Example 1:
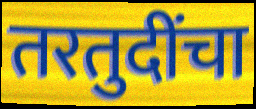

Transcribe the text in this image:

तरतुदींचा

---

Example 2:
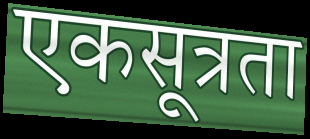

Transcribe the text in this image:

एकसूत्रता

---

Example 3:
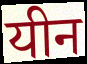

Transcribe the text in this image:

यीन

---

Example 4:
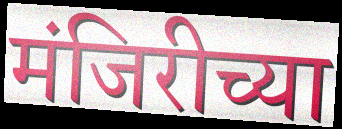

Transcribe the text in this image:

मंजिरीच्या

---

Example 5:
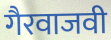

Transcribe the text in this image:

गैरवाजवी